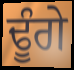
ਢੂੰਗੇ